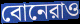
বোনেরাও